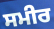
ਸਮੀਰ